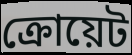
ক্রোয়েট